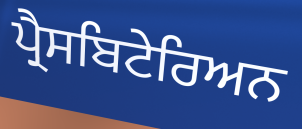
ਪ੍ਰੈਸਬਿਟੇਰਿਅਨ